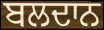
ਬਲਦਾਨ